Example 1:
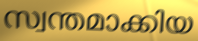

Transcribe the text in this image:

സ്വന്തമാക്കിയ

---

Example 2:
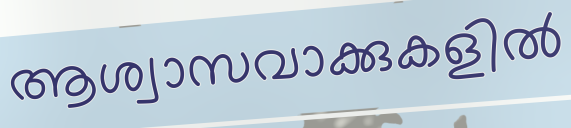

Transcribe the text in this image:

ആശ്വാസവാക്കുകളിൽ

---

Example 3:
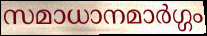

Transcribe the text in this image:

സമാധാനമാർഗ്ഗം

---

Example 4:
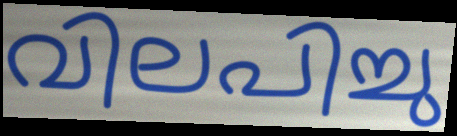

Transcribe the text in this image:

വിലപിച്ചു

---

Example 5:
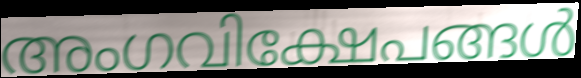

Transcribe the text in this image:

അംഗവിക്ഷേപങ്ങൾ